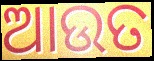
ଆଉତ